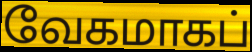
வேகமாகப்